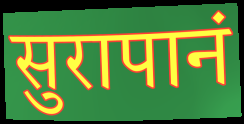
सुरापानं